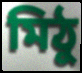
মিঠু